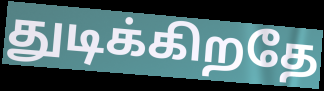
துடிக்கிறதே